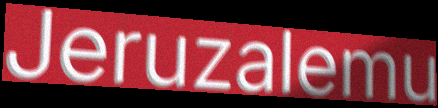
Jeruzalemu